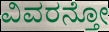
ವಿವರನ್ತೋ